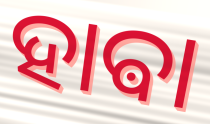
ହାଵା